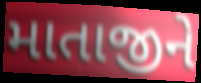
માતાજીને